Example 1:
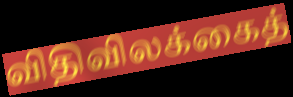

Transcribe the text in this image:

விதிவிலக்கைத்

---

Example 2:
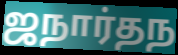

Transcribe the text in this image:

ஜநார்தந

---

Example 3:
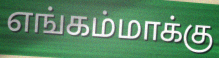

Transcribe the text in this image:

எங்கம்மாக்கு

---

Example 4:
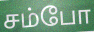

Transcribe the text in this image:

சம்போ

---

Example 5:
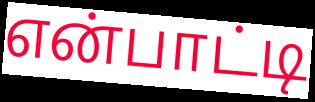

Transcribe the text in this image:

என்பாட்டி